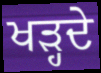
ਖੜ੍ਹਦੇ